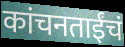
कांचनताईंचं